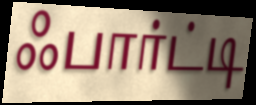
ஃபார்ட்டி